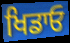
ਖਿਡਾਓ